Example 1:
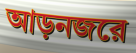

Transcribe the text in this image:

আড়নজরে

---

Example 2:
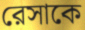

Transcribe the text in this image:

রেসাকে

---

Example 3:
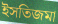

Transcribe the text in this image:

ইসতিজমা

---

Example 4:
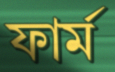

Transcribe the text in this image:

ফার্ম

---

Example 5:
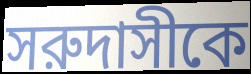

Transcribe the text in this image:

সরুদাসীকে